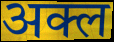
अक्ल